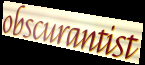
obscurantist